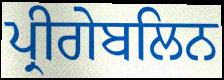
ਪ੍ਰੀਗੇਬਲਿਨ